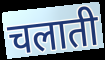
चलाती